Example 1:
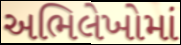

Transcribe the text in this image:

અભિલેખોમાં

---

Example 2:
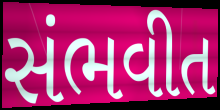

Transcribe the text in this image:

સંભવીત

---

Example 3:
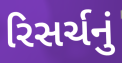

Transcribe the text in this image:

રિસર્ચનું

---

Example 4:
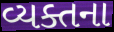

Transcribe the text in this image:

વ્યક્તના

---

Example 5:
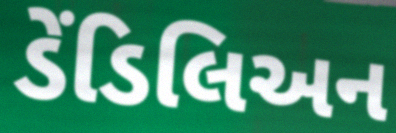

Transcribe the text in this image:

ડેંડિલિઅન